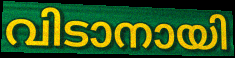
വിടാനായി